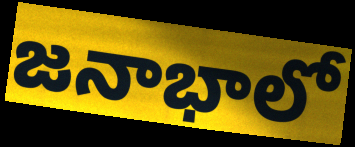
జనాభాలో